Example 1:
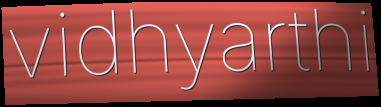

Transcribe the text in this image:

vidhyarthi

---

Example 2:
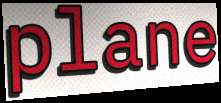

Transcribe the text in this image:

plane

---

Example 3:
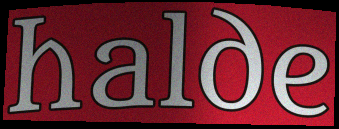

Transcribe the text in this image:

halde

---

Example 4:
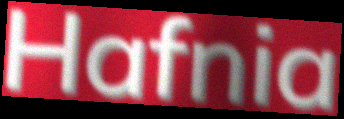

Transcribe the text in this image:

Hafnia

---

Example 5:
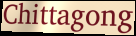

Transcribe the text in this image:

Chittagong